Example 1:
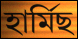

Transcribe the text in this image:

হাৰ্মিছ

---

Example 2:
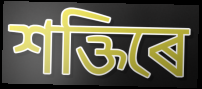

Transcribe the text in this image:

শক্তিৰে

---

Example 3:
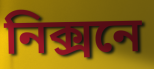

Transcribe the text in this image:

নিক্সনে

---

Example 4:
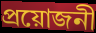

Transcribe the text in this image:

প্ৰয়োজনী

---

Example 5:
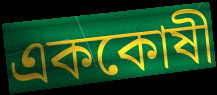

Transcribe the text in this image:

এককোষী